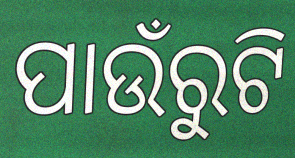
ପାଉଁରୁଟି